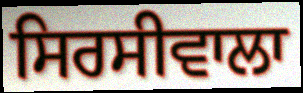
ਸਿਰਸੀਵਾਲਾ